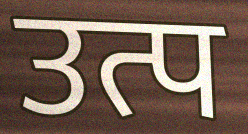
उत्प